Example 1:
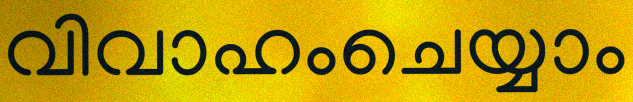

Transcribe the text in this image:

വിവാഹംചെയ്യാം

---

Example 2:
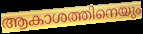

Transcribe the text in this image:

ആകാശത്തിനെയും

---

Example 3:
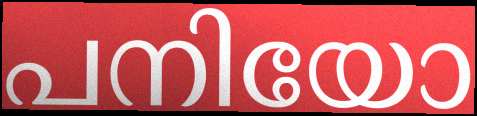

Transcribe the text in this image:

പനിയോ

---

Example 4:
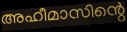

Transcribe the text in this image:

അഹീമാസിന്റെ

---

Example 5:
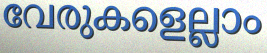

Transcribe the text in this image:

വേരുകളെല്ലാം